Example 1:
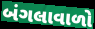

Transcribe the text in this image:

બંગલાવાળો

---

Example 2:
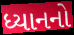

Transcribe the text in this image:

ધ્યાનનો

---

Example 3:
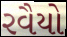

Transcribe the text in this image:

રવૈયો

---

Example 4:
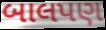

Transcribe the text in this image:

બાલપણ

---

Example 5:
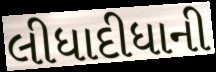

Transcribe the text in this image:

લીધાદીધાની